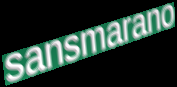
sansmarano